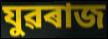
যুৱৰাজ